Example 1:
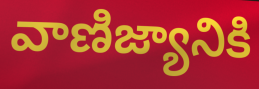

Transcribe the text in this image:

వాణిజ్యానికి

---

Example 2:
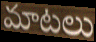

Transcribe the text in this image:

మాటలు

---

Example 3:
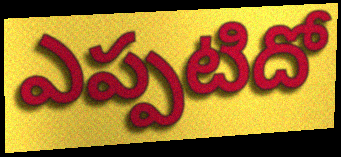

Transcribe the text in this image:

ఎప్పటిదో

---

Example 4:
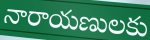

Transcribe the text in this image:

నారాయణులకు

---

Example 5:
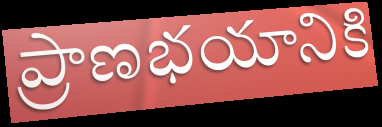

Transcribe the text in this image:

ప్రాణభయానికి